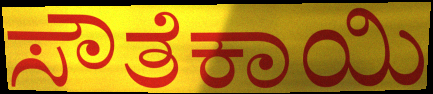
ಸೌತೆಕಾಯಿ